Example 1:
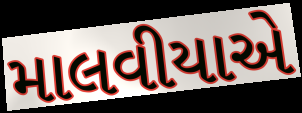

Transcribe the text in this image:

માલવીયાએ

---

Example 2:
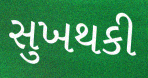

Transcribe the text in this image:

સુખથકી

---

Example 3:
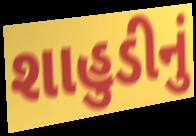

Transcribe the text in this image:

શાહુડીનું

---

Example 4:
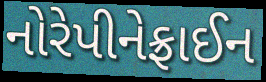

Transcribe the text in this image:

નોરેપીનેફ્રાઈન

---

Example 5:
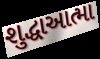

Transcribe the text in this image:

શુદ્ધાઆત્મા